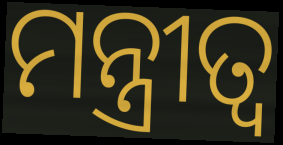
ମନ୍ତ୍ରୀତ୍ୱ